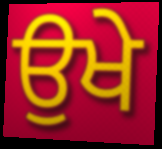
ਉਖੇ